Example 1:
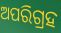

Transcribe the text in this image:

ଅପରିଗ୍ରହ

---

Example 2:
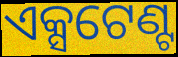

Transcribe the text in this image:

ଏକ୍ସଟେଣ୍ଟ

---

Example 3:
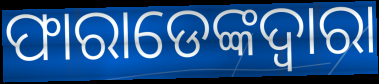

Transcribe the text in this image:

ଫାରାଡେଙ୍କଦ୍ୱାରା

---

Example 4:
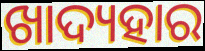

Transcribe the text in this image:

ଖାଦ୍ୟହାର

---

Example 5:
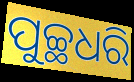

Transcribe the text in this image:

ପୁଚ୍ଛଧରି